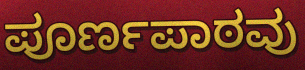
ಪೂರ್ಣಪಾಠವು